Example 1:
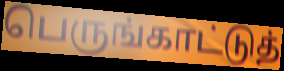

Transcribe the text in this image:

பெருங்காட்டுத்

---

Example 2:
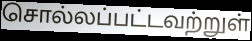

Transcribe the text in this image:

சொல்லப்பட்டவற்றுள்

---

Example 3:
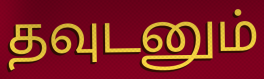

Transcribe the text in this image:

தவுடனும்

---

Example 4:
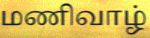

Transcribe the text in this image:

மணிவாழ்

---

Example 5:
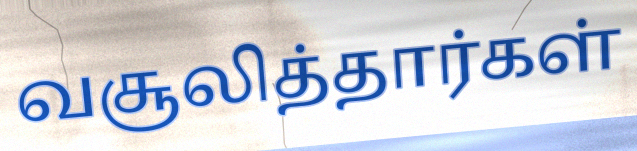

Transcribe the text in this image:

வசூலித்தார்கள்